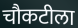
चौकटीला